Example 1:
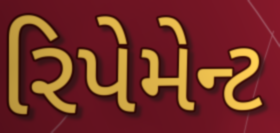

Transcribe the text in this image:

રિપેમેન્ટ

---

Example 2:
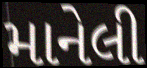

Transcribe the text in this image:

માનેલી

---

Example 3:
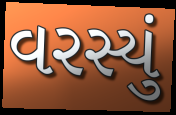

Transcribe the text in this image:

વરસ્યું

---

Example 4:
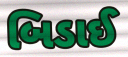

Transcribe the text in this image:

બિડાઈ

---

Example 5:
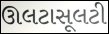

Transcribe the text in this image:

ઊલટાસૂલટી